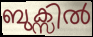
ബുക്സിൽ